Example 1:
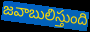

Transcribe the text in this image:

జవాబులిస్తుంది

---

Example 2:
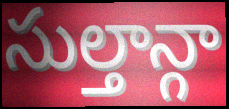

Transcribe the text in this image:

సుల్తాన్గా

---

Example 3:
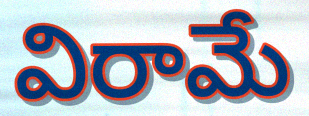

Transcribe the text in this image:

విరామే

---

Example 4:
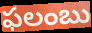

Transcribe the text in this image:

ఫలంబు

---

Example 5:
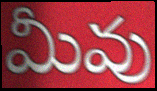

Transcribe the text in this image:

మీవు